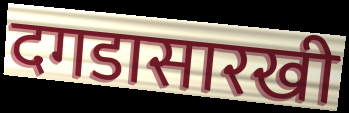
दगडासारखी